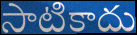
సాటికాదు